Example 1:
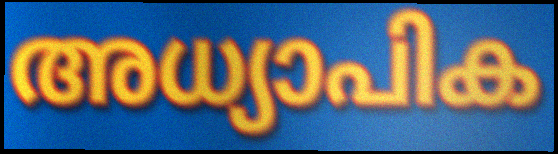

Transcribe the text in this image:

അധ്യാപിക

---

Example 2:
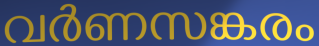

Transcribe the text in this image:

വർണസങ്കരം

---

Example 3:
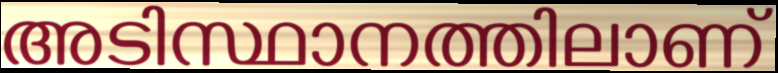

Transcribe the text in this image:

അടിസ്ഥാനത്തിലാണ്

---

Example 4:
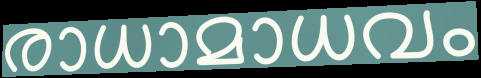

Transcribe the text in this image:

രാധാമാധവം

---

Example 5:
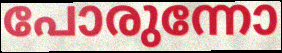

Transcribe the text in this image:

പോരുന്നോ